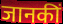
जानकीं